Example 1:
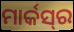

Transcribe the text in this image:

ମାର୍କସ୍‍ର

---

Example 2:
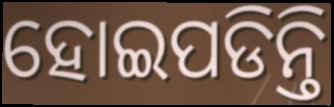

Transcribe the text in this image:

ହୋଇପଡିନ୍ତି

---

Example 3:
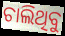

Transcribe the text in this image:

ଚାଲିଥିବୁ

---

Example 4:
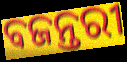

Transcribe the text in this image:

ବଜନ୍ତରୀ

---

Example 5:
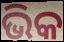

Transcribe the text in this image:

ଭିକ